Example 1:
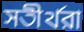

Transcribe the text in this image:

সতীর্থরা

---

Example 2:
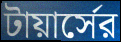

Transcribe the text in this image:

টায়ার্সের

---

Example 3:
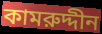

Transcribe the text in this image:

কামরুদ্দীন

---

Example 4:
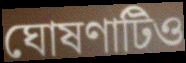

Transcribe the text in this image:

ঘোষণাটিও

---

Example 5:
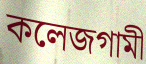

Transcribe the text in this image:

কলেজগামী